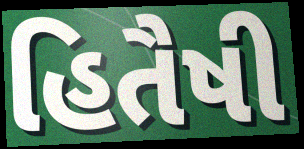
હિતૈષી